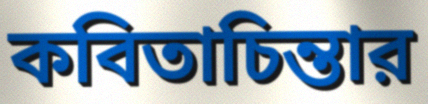
কবিতাচিন্তার